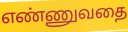
எண்ணுவதை